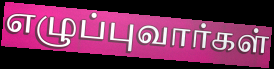
எழுப்புவார்கள்